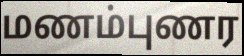
மணம்புணர